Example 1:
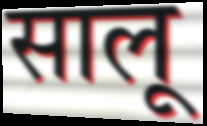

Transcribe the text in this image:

सालू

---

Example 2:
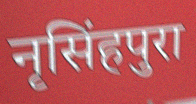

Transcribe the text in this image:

नृसिंहपुरा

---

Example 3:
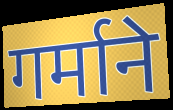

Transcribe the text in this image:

गर्माने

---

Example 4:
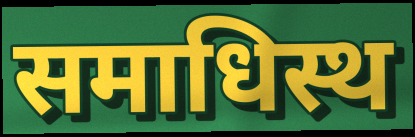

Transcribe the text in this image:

समाधिस्थ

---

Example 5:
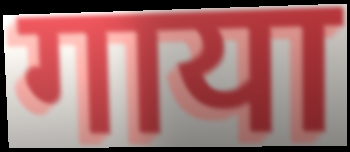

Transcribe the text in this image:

गाया